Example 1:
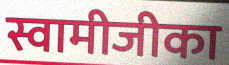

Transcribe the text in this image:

स्वामीजीका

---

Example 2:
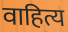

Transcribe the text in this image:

वाहित्य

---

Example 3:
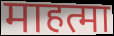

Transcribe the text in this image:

माहत्मा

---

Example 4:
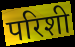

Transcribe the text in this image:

परिशी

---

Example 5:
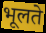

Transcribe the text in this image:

भूलते